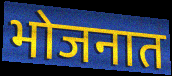
भोजनात